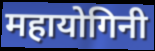
महायोगिनी